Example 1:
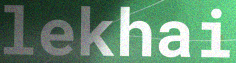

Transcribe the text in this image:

lekhai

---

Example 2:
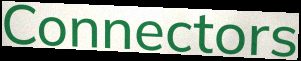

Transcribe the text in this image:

Connectors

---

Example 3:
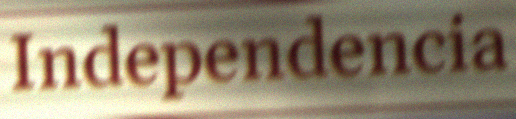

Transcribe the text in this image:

Independencia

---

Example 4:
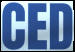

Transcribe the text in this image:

CED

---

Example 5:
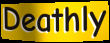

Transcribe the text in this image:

Deathly